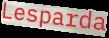
Lesparda